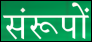
संरूपों